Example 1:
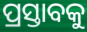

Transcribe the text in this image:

ପ୍ରସ୍ତାବକୁ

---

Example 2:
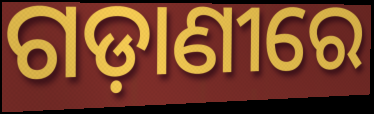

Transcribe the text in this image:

ଗଡ଼ାଣୀରେ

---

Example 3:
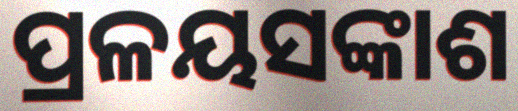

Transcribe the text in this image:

ପ୍ରଳୟସଙ୍କାଶ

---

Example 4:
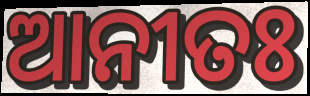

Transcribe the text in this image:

ଆନୀତଃ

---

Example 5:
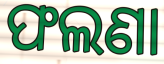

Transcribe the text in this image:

ଫଲଣା